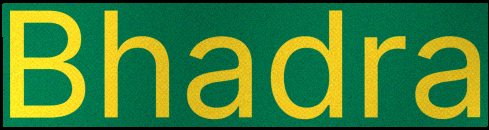
Bhadra